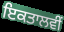
ਇਕਤਾਲਵੀਂ